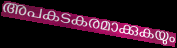
അപകടകരമാക്കുകയും